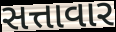
સત્તાવાર